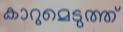
കാറുമെടുത്ത്